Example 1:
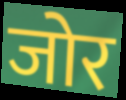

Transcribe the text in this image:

जोर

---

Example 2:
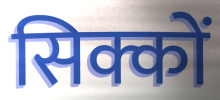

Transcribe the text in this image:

सिक्‍कों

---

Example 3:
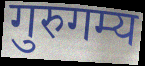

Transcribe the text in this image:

गुरुगम्य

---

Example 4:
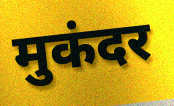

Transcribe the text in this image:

मुकंदर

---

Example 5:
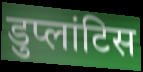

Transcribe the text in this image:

डुप्लांटिस